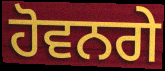
ਹੋਵਨਗੇ